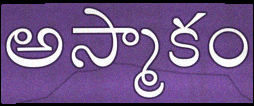
అస్మాకం